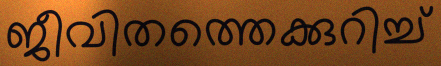
ജീവിതത്തെക്കുറിച്ച്